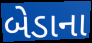
બેડાના